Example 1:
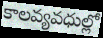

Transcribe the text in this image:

కాలవ్యవధుల్లో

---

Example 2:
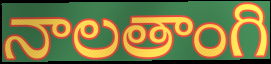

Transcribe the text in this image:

నాలతాంగి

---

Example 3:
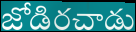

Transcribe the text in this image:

జోడిరచాడు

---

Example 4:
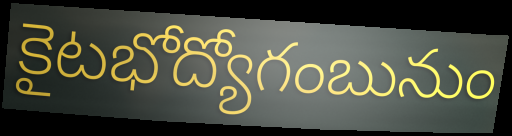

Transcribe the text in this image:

కైటభోద్యోగంబునుం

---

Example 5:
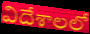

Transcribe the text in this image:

విదేశాలలో